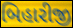
બિહારીજી